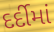
દર્દીમાં